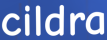
cildra